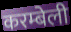
करम्बेली